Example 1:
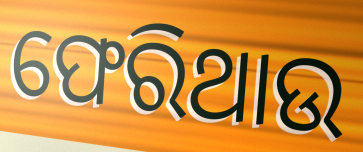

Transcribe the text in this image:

ଫେରିଥାଉ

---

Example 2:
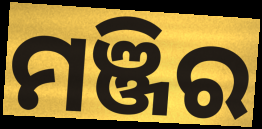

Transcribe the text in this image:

ମଞ୍ଜିର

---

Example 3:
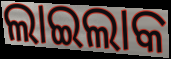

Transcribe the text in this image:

ଲାଇଲାକ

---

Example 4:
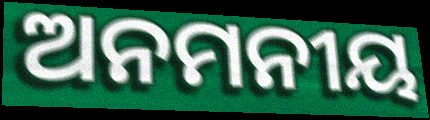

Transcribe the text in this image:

ଅନମନୀୟ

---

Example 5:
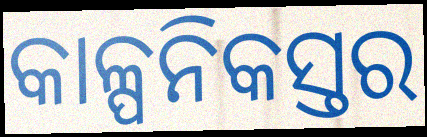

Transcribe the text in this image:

କାଳ୍ପନିକସ୍ତର